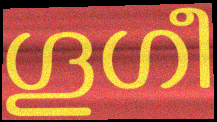
ഗൂഗീ